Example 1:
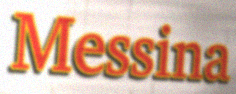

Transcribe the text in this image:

Messina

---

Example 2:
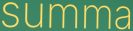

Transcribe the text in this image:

summa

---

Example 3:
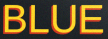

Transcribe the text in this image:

BLUE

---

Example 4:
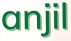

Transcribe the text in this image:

anjil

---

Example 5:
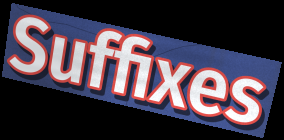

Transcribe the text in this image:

Suffixes